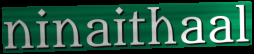
ninaithaal